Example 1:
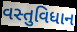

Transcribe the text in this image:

વસ્તુવિધાન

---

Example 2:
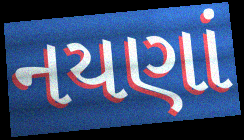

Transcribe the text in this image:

નયણાં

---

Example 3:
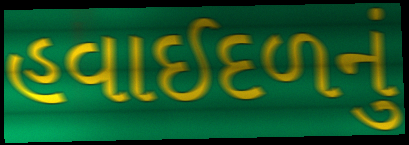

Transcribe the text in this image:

હવાઈદળનું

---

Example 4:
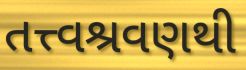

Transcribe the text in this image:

તત્ત્વશ્રવણથી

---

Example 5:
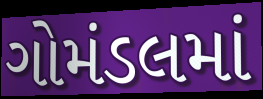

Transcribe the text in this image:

ગોમંડલમાં